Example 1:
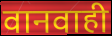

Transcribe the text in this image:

वानवाही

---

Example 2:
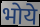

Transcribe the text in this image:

भोये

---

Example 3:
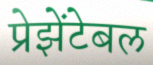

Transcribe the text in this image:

प्रेझेंटेबल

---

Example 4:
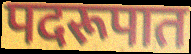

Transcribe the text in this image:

पदरूपात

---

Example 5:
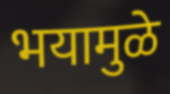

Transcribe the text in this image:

भयामुळे